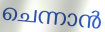
ചെന്നാൻ